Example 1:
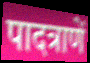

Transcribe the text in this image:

पादत्राणें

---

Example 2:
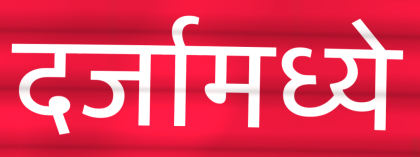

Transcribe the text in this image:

दर्जामध्ये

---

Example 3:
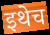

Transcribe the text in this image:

इथेच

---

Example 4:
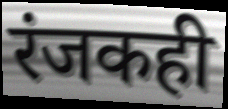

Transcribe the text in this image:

रंजकही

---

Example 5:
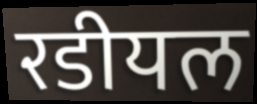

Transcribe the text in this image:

रडीयल